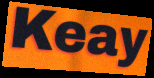
Keay